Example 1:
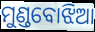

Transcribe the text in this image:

ମୁଣ୍ଡବୋଝିଆ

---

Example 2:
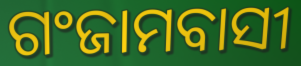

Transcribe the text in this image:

ଗଂଜାମବାସୀ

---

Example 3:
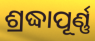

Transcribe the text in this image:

ଶ୍ରଦ୍ଧାପୂର୍ଣ୍ଣ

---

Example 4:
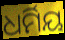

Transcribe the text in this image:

ଧର୍ମିୟ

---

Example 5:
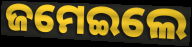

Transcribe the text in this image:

ଜମେଇଲେ